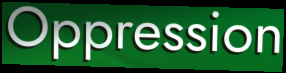
Oppression